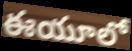
ఈయూలో